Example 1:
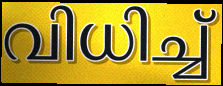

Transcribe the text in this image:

വിധിച്ച്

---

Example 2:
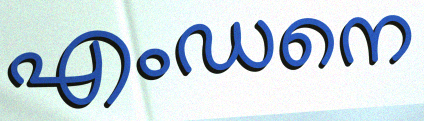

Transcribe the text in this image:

എംഡനെ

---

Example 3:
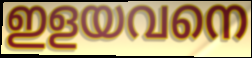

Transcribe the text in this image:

ഇളയവനെ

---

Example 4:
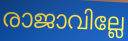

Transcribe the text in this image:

രാജാവില്ലേ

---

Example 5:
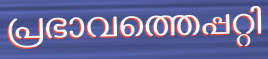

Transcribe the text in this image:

പ്രഭാവത്തെപ്പറ്റി